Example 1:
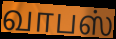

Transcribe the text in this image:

வாபஸ்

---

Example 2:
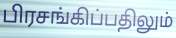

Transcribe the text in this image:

பிரசங்கிப்பதிலும்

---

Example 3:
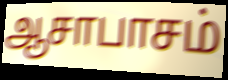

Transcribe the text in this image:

ஆசாபாசம்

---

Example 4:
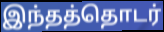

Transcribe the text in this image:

இந்தத்தொடர்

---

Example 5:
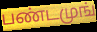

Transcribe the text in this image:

பண்டமுங்